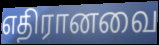
எதிரானவை